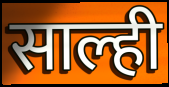
साल्ही